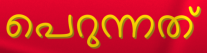
പെറുന്നത്